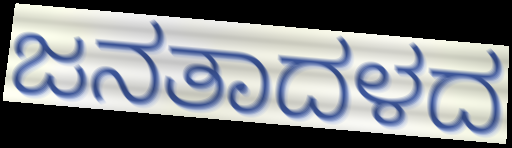
ಜನತಾದಳದ